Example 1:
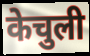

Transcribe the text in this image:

केचुली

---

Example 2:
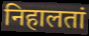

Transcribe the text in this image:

निहालतां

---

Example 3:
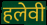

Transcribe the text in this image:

हलेवी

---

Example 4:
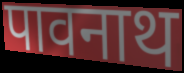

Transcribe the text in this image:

पावनाथ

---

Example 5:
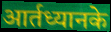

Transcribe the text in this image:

आर्तध्यानके